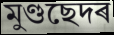
মুণ্ডছেদৰ